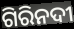
ଗିରିନଦୀ